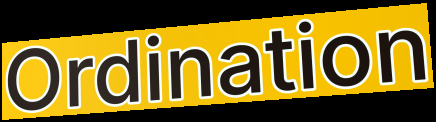
Ordination